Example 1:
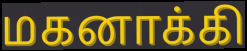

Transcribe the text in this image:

மகனாக்கி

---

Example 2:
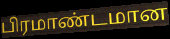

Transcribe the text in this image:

பிரமாண்டமான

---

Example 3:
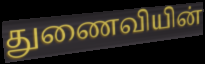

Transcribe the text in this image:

துணைவியின்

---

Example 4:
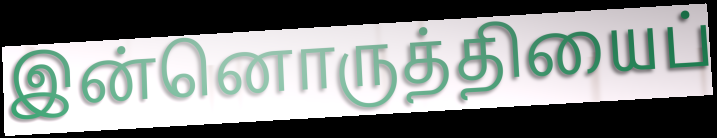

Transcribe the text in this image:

இன்னொருத்தியைப்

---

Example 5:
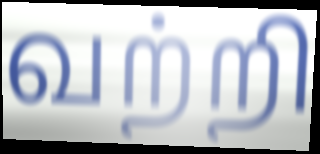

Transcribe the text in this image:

வற்றி